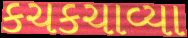
કચકચાવ્યા